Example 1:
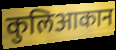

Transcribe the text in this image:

कुलिआकान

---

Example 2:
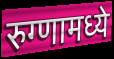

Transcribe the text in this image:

रुग्णामध्ये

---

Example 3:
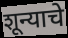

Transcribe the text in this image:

शून्याचे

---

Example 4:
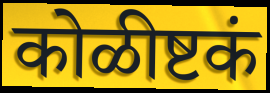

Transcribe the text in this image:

कोळीष्टकं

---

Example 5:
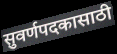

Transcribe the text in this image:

सुवर्णपदकासाठी